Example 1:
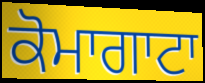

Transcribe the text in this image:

ਕੋਮਾਗਾਟਾ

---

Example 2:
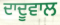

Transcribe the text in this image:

ਦਾਦੂਵਾਲ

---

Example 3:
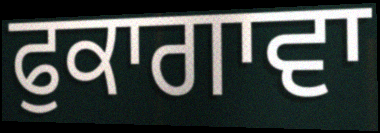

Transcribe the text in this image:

ਫੁਕਾਗਾਵਾ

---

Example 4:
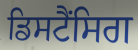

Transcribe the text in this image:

ਡਿਸਟੈਂਸਿਗ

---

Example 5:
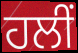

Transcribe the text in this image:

ਹਲੀਂ